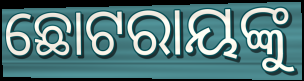
ଛୋଟରାୟଙ୍କୁ